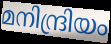
മനിന്ദ്രിയം